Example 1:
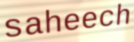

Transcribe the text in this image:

saheech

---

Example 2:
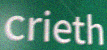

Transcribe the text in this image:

crieth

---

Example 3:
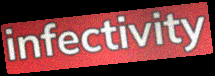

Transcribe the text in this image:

infectivity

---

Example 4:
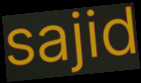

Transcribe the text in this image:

sajid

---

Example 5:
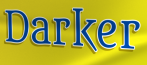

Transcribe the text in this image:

Darker